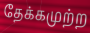
தேக்கமுற்ற